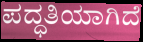
ಪದ್ಧತಿಯಾಗಿದೆ